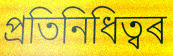
প্ৰতিনিধিত্বৰ